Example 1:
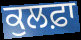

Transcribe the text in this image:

ਕੁਲਫ਼ਾ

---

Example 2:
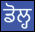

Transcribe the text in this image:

ਡੋਲ੍ਹ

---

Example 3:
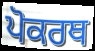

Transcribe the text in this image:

ਪੋਕਰਥ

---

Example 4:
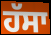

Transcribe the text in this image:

ਹੱਸਾ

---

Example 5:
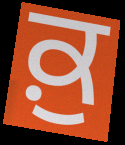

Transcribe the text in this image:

ਕ਼ੁ